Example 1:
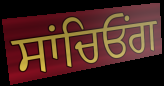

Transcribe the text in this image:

ਸਾਂਚਿਓਂਗ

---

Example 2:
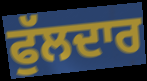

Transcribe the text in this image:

ਫੁੱਲਦਾਰ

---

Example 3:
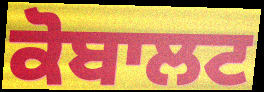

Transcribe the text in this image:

ਕੋਬਾਲਟ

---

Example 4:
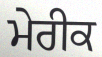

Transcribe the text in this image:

ਮੇਰੀਕ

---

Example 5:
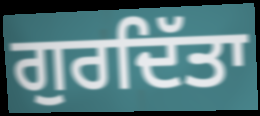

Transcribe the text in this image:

ਗੁਰਦਿੱਤਾ